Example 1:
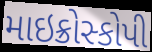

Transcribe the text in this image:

માઇક્રોસ્કોપી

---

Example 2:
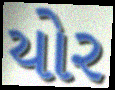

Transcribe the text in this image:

યોર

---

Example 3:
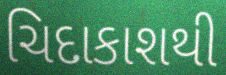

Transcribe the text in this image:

ચિદાકાશથી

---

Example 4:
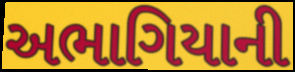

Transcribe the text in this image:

અભાગિયાની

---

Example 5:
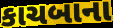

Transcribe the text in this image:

કાચબાના